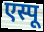
एस्पू